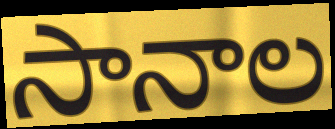
సానాల